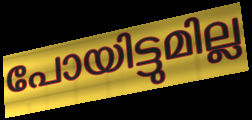
പോയിട്ടുമില്ല